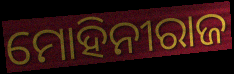
ମୋହିନୀରାଜ